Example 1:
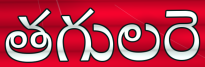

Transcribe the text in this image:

తగులరె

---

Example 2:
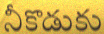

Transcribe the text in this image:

నీకొడుకు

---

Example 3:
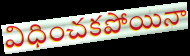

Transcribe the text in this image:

విధించకపోయినా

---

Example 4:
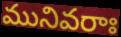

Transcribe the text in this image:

మునివరాః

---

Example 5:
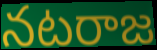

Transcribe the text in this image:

నటరాజ